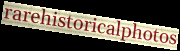
rarehistoricalphotos